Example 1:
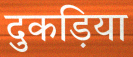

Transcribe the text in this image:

दुकड़िया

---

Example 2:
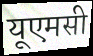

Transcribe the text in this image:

यूएमसी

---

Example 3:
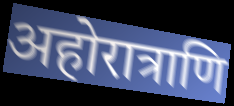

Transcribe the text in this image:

अहोरात्राणि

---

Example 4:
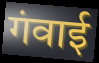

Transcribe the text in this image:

गंवाई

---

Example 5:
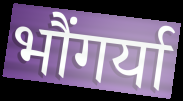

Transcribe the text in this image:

भौंगर्या